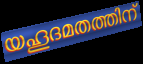
യഹൂദമതത്തിന്